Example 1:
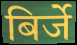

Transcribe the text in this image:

बिर्जे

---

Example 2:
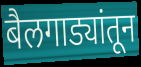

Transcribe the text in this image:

बैलगाड्यांतून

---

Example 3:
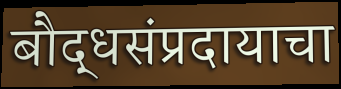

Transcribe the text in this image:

बौद्धसंप्रदायाचा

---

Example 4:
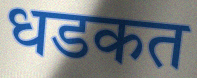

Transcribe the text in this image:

धडकत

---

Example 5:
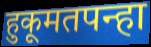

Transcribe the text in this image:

हुकूमतपन्हा